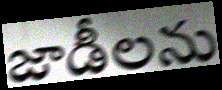
జాడీలను